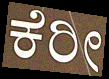
ಕೆರೀ